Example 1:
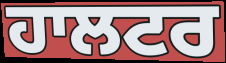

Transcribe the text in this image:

ਹਾਲਟਰ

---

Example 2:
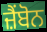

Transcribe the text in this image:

ਜ਼ੈਂਬੋਨ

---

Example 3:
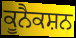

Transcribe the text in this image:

ਕੂਨੈਕਸ਼ਨ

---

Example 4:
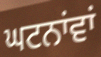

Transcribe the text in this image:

ਘਟਨਾਂਵਾਂ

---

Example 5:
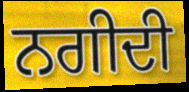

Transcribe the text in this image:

ਨਗੀਦੀ